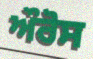
ਔਰੋਸ